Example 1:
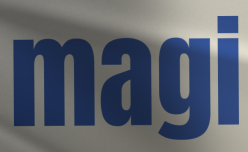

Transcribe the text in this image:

magi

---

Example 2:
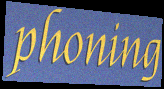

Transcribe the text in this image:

phoning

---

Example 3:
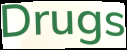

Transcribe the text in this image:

Drugs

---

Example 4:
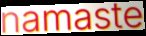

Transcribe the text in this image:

namaste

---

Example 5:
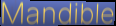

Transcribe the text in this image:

Mandible